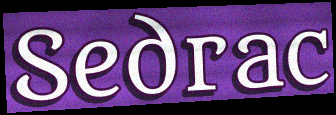
Sedrac